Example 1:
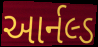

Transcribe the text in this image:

આર્નલ્ડ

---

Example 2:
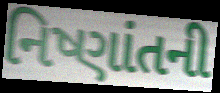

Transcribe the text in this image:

નિષ્ણાંતની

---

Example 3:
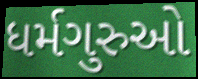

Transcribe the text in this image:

ધર્મગુરુઓ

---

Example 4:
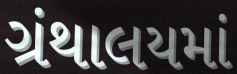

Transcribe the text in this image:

ગ્રંથાલયમાં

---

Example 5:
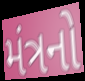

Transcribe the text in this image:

મંત્રનો